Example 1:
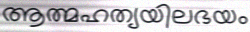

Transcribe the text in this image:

ആത്മഹത്യയിലഭയം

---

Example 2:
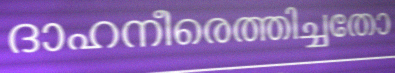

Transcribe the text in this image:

ദാഹനീരെത്തിച്ചതോ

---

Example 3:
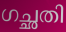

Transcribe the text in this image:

ഗച്ഛതി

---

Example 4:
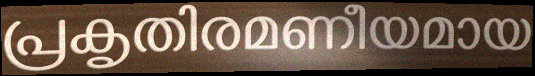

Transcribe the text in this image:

പ്രകൃതിരമണീയമായ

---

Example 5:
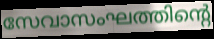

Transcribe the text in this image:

സേവാസംഘത്തിന്റെ